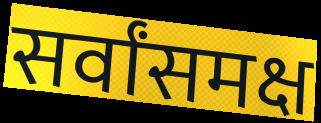
सर्वांसमक्ष